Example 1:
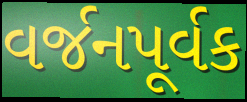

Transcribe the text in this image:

વર્જનપૂર્વક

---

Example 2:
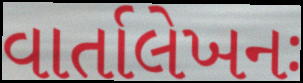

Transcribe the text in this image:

વાર્તાલેખનઃ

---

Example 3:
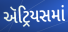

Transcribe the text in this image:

ઍટ્રિયસમાં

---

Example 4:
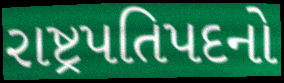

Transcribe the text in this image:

રાષ્ટ્રપતિપદનો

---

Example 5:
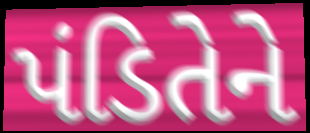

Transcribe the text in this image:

પંડિતેને